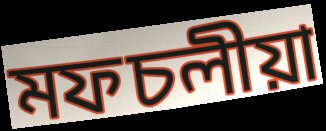
মফচলীয়া